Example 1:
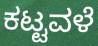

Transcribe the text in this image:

ಕಟ್ಟವಳೆ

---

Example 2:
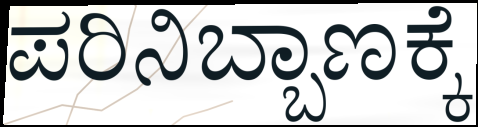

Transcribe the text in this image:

ಪರಿನಿಬ್ಬಾಣಕ್ಕೆ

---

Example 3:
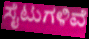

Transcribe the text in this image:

ಸೈಟುಗಳಿವೆ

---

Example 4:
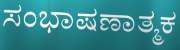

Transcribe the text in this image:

ಸಂಭಾಷಣಾತ್ಮಕ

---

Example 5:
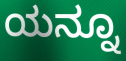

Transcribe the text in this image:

ಯನ್ನೂ